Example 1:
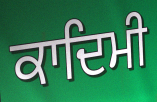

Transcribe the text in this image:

ਕਾਦਿਮੀ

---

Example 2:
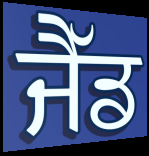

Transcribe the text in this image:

ਜੈੱਡ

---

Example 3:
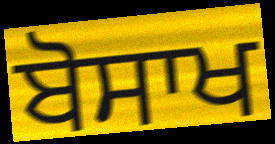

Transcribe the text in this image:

ਬੋਸਾਖ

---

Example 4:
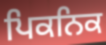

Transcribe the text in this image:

ਪਿਕਨਿਕ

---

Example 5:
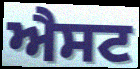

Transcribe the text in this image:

ਐਸਟ